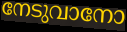
നേടുവാനോ